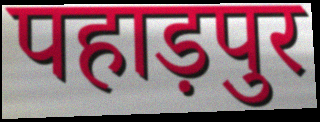
पहाड़पुर